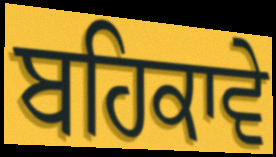
ਬਹਿਕਾਵੇ